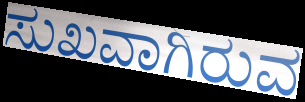
ಸುಖವಾಗಿರುವ